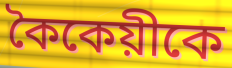
কৈকেয়ীকে